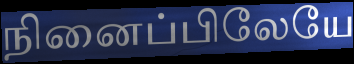
நினைப்பிலேயே